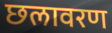
छलावरण